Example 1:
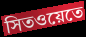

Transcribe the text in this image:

সিতওয়েতে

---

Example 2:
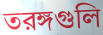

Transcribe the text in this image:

তরঙ্গগুলি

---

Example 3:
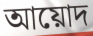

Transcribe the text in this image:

আয়োদ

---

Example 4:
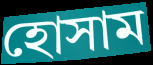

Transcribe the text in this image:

হোসাম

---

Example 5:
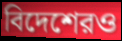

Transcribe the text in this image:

বিদেশেরও